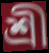
শ্রী